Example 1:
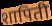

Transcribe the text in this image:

शापिती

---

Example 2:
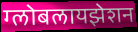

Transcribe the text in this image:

ग्लोबलायझेशन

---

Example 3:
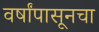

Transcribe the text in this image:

वर्षांपासूनचा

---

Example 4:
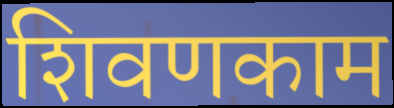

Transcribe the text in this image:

शिवणकाम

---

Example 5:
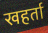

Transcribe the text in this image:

खहर्ता